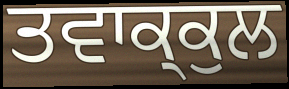
ਤਵਾਕ੍ਕੁਲ